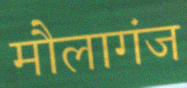
मौलागंज